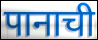
पानाची